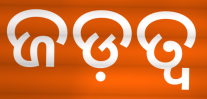
ଜଡ଼ତ୍ଵ